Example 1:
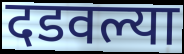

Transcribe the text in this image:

दडवल्या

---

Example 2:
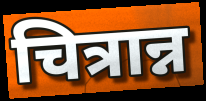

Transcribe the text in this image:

चित्रान्न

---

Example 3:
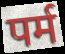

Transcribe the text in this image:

पर्म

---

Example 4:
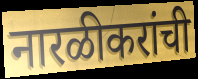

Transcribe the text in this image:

नारळीकरांची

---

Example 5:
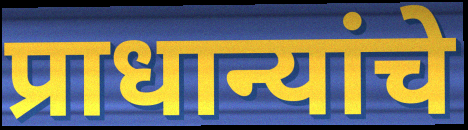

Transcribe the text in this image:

प्राधान्यांचे